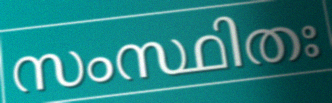
സംസ്ഥിതഃ